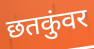
छतकुंवर